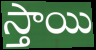
స్తాయి